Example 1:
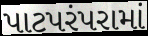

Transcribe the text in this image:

પાટપરંપરામાં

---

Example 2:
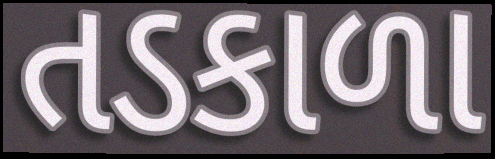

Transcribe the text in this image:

તડકાળા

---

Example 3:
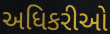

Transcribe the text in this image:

અધિકરીઓ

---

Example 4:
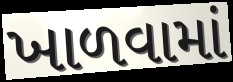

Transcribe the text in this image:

ખાળવામાં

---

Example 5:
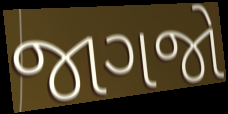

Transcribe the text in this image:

જાગજો